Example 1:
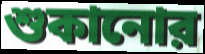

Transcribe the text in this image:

শুকানোর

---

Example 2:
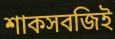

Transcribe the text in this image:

শাকসবজিই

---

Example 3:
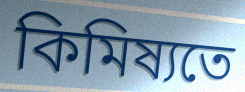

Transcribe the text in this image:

কিমিষ্যতে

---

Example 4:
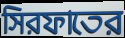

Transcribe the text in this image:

সিরফাতের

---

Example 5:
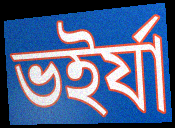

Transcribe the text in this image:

ভইর্যা